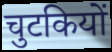
चुटकियों